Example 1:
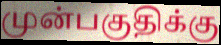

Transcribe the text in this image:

முன்பகுதிக்கு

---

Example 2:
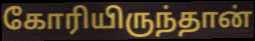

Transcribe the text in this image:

கோரியிருந்தான்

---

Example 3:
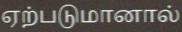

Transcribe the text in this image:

ஏற்படுமானால்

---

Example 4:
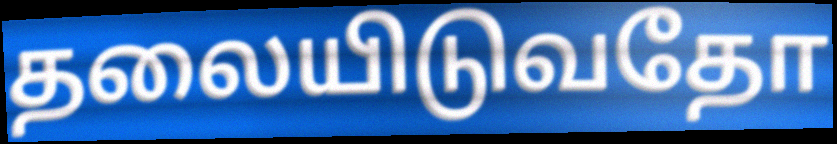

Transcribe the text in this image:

தலையிடுவதோ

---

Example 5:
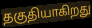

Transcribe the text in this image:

தகுதியாகிறது